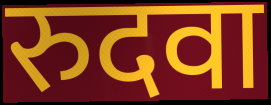
रुदवा